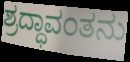
ಶ್ರದ್ಧಾವಂತನು